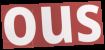
ous